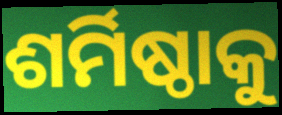
ଶର୍ମିଷ୍ଠାକୁ